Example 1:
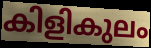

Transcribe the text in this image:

കിളികുലം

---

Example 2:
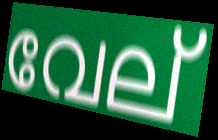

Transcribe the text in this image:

വേല്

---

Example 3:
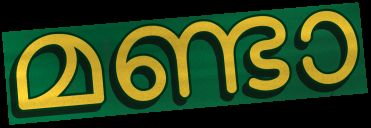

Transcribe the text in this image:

മണ്ടാ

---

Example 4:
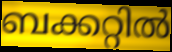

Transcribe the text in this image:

ബക്കറ്റിൽ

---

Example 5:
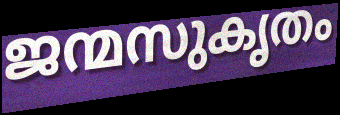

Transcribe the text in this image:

ജന്മസുകൃതം